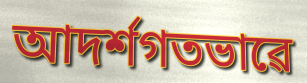
আদৰ্শগতভাৱে